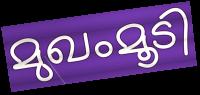
മുഖംമൂടി